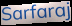
Sarfaraj